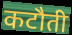
कटौती